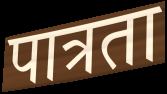
पात्रता